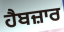
ਹੈਬਜ਼ਾਰ